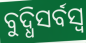
ବୁଦ୍ଧିସର୍ବସ୍ୱ